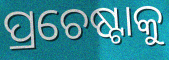
ପ୍ରଚେଷ୍ଟାକୁ